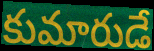
కుమారుడే